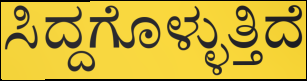
ಸಿದ್ದಗೊಳ್ಳುತ್ತಿದೆ